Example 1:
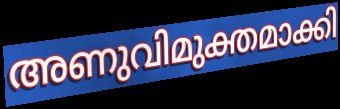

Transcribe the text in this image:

അണുവിമുക്തമാക്കി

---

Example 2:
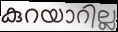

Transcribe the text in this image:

കുറയാറില്ല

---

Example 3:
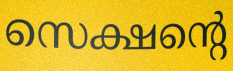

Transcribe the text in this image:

സെക്ഷന്റെ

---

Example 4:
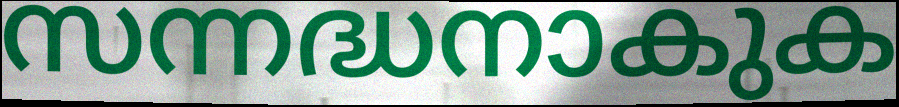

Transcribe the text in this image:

സന്നദ്ധനാകുക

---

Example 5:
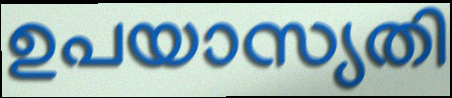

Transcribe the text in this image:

ഉപയാസ്യതി